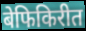
बेफिकिरीत